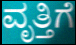
ವೃತ್ತಿಗೆ